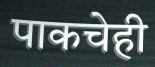
पाकचेही